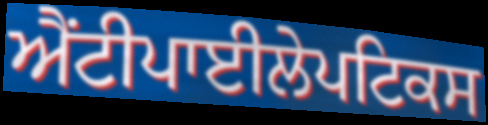
ਐਂਟੀਪਾਈਲੇਪਟਿਕਸ